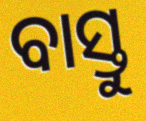
ବାସ୍ତୁ